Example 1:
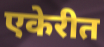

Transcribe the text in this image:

एकेरीत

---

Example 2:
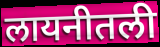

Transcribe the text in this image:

लायनीतली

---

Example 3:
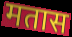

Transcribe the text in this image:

मतास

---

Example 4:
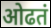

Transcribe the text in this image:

ओढतं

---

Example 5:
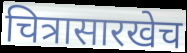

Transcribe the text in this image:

चित्रासारखेच